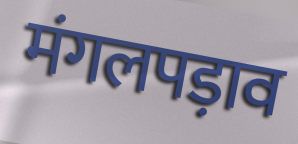
मंगलपड़ाव